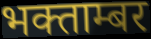
भक्ताम्बर